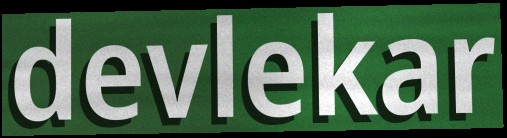
devlekar